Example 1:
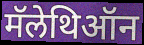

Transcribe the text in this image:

मॅलेथिऑन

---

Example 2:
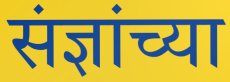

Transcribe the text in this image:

संज्ञांच्या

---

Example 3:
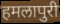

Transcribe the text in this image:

हमलापुरी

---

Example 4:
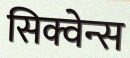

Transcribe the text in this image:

सिक्वेन्स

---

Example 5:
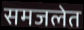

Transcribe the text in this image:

समजलेत